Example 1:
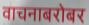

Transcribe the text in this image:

वाचनाबरोबर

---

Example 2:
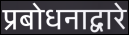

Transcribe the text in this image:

प्रबोधनाद्वारे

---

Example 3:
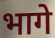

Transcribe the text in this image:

भागे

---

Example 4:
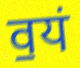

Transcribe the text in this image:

व॒यं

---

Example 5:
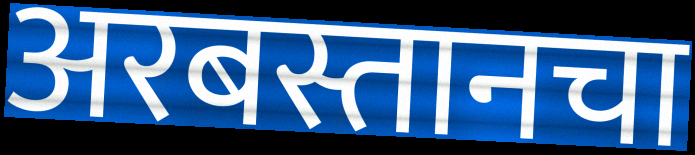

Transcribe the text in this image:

अरबस्तानचा